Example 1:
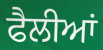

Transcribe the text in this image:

ਫੈਲੀਆਂ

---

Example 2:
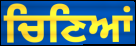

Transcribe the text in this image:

ਚਿਣਿਆਂ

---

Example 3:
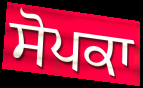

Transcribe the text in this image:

ਸੋਪਕਾ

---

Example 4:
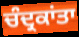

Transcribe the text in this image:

ਚੰਦ੍ਰਕਾਂਤਾ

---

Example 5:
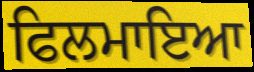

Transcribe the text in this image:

ਫਿਲਮਾਇਆ